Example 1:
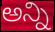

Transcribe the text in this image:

అన్ని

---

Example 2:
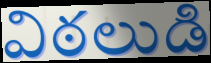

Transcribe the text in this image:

విఠలుడి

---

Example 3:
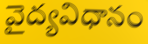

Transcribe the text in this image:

వైద్యవిధానం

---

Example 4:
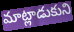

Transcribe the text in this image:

మాట్లాడుకుని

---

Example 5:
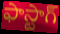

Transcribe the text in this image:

ఫాస్టాగ్